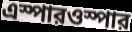
এস্পারওস্পার